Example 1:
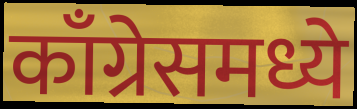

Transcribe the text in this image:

काँग्रेसमध्ये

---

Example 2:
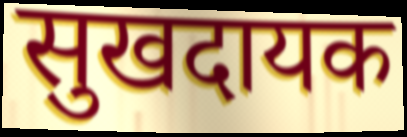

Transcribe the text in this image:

सुखदायक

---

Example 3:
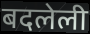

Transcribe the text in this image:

बदलेली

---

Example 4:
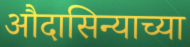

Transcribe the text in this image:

औदासिन्याच्या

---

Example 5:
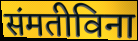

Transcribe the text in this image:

संमतीविना